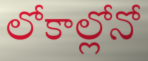
లోకాల్లోనో